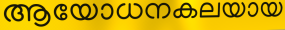
ആയോധനകലയായ